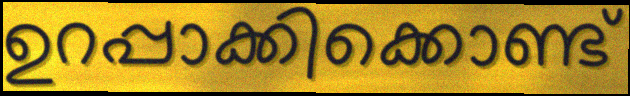
ഉറപ്പാക്കിക്കൊണ്ട്